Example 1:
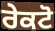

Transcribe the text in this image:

ਰੇਕਟੋ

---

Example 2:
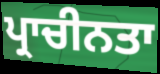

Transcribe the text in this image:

ਪ੍ਰਾਚੀਨਤਾ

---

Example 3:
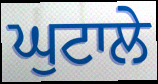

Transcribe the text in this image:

ਘੁਟਾਲੇ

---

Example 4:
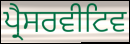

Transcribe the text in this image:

ਪ੍ਰੈਸਰਵੀਟਿਵ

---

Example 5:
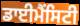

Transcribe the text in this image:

ਡਾਈਮੈਂਸਿਟੀ